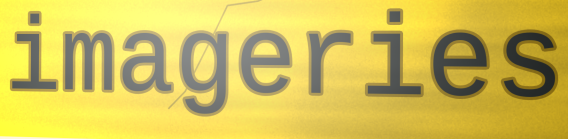
imageries